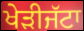
ਖੇੜੀਜੱਟਾ